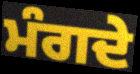
ਮੰਗਦੇ